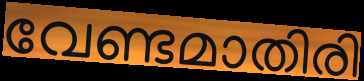
വേണ്ടമാതിരി